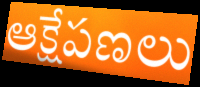
ఆక్షేపణలు